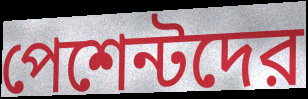
পেশেন্টদের